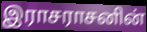
இராசராசனின்